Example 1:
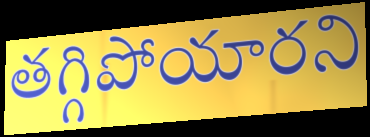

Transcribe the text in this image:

తగ్గిపోయారని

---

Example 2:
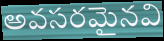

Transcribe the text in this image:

అవసరమైనవి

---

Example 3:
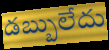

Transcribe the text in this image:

డబ్బులేదు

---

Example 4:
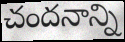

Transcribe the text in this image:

చందనాన్ని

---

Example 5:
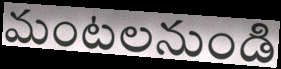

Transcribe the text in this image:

మంటలనుండి